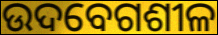
ଉଦବେଗଶୀଳ